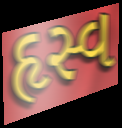
હૃસ્વ